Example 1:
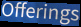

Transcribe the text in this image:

Offerings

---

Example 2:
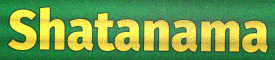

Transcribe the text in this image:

Shatanama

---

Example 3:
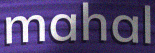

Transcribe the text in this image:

mahal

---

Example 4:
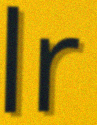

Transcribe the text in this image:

lr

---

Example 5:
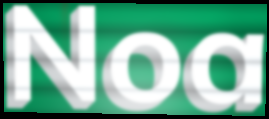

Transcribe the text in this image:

Noa